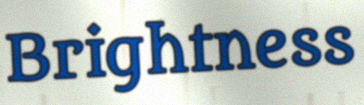
Brightness